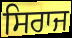
ਸਿਰਾਜ